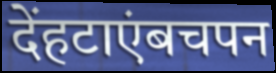
देंहटाएंबचपन